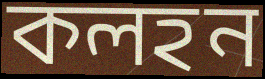
কলহন